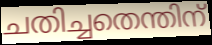
ചതിച്ചതെന്തിന്